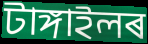
টাঙ্গাইলৰ